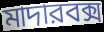
মাদারবক্স